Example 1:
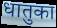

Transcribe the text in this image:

धातुका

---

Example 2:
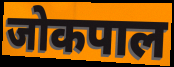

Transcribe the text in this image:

जोकपाल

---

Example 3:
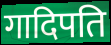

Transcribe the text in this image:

गादिपति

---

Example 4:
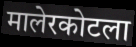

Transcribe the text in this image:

मालेरकोटला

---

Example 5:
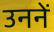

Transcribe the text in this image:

उननें